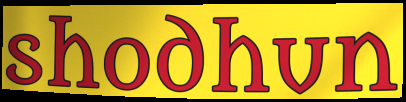
shodhun